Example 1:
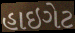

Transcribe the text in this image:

હાઇગેટ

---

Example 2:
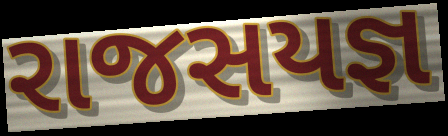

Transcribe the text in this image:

રાજસયજ્ઞ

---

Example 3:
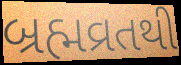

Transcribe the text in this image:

બ્રહ્મવ્રતથી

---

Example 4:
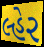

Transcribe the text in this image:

લ્હેર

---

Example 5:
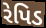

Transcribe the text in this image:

રેપિડ